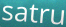
satru